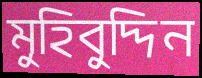
মুহিবুদ্দিন